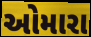
ઓમારા